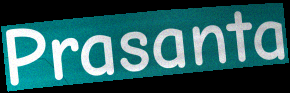
Prasanta